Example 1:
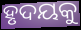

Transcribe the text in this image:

ହୃଦୟକୁ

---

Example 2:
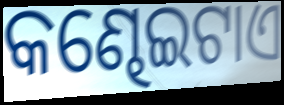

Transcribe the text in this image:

କଣ୍ଢେଇଟାଏ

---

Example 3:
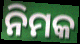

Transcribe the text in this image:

ନିମକ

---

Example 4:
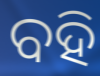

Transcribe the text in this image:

ବହି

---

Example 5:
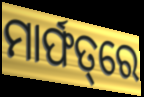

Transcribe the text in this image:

ମାର୍ଫତ୍‌ରେ